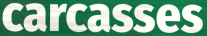
carcasses